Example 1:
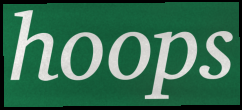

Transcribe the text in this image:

hoops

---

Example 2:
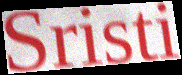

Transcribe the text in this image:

Sristi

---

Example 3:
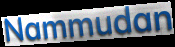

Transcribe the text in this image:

Nammudan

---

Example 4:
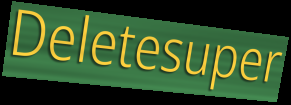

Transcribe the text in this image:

Deletesuper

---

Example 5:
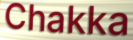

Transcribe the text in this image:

Chakka